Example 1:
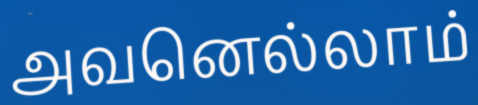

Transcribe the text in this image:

அவனெல்லாம்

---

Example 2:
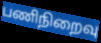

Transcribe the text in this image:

பணிநிறைவு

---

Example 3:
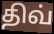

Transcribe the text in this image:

திவ்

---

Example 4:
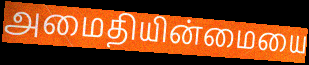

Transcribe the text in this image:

அமைதியின்மையை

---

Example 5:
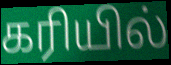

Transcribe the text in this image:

கரியில்